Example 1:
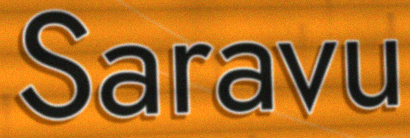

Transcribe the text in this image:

Saravu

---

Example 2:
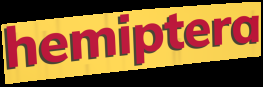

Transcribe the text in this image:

hemiptera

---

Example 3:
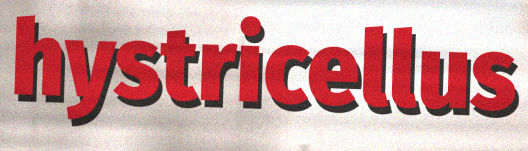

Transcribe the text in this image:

hystricellus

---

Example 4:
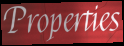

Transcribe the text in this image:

Properties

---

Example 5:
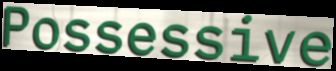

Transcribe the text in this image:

Possessive